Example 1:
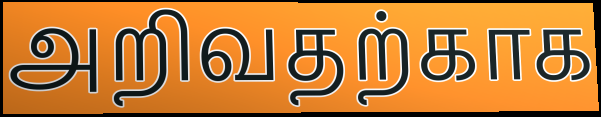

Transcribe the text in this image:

அறிவதற்காக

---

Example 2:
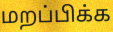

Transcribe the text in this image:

மறப்பிக்க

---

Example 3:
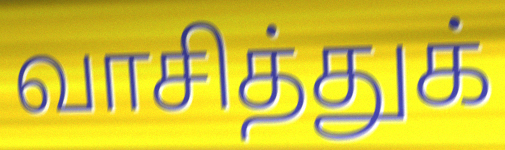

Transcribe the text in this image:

வாசித்துக்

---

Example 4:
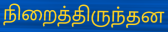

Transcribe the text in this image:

நிறைத்திருந்தன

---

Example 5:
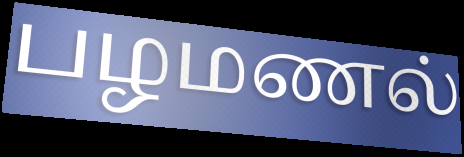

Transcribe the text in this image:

பழமணல்